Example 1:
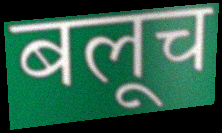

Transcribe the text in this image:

बलूच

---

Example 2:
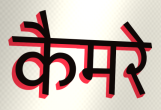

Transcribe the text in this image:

कैमरे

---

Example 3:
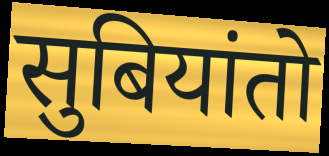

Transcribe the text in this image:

सुबियांतो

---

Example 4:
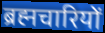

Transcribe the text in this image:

ब्रह्मचारियों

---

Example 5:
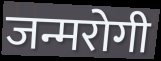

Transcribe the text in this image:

जन्मरोगी